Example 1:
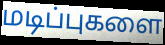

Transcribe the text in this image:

மடிப்புகளை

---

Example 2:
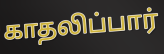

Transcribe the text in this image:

காதலிப்பார்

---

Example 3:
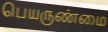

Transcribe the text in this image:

பெயருண்மை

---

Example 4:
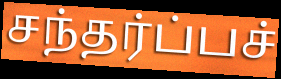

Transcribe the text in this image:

சந்தர்ப்பச்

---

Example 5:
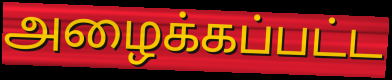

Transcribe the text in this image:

அழைக்கப்பட்ட